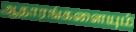
ஆதாரங்களையும்